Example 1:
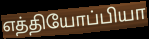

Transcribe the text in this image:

எத்தியோப்பியா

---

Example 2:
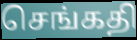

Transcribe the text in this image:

செங்கதி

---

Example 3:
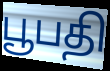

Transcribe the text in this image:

பூபதி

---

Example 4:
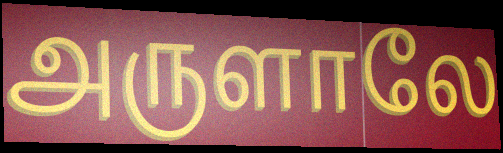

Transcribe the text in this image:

அருளாலே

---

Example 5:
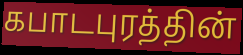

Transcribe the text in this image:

கபாடபுரத்தின்